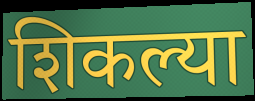
शिकल्या